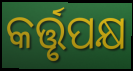
କର୍ତ୍ତୃପକ୍ଷ